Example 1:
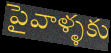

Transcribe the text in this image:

పైవాళ్ళకు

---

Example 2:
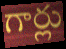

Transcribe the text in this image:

గార్లు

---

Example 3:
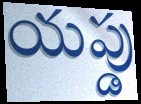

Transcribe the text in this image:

యప్డు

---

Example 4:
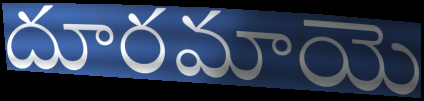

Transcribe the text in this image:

దూరమాయె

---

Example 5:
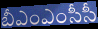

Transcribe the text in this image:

బీఎంఎంసీసీ